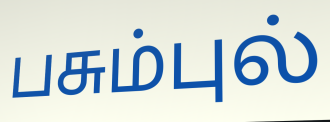
பசும்புல்